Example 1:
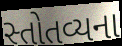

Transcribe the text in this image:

સ્તોતવ્યના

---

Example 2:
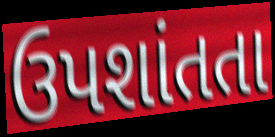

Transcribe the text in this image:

ઉપશાંતતા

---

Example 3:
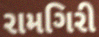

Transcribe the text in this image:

રામગિરી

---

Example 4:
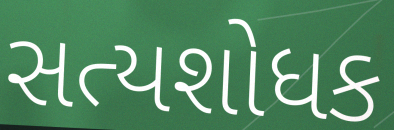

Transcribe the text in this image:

સત્યશોધક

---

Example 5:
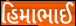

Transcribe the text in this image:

હિમાભાઈ